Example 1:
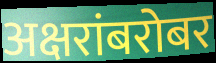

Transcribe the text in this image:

अक्षरांबरोबर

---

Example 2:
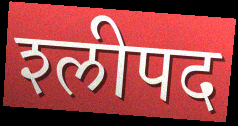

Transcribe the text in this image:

श्लीपद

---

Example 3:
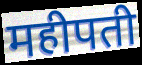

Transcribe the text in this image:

महीपती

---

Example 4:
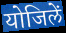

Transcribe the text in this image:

योजिलें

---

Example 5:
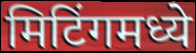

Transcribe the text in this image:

मिटिंगमध्ये